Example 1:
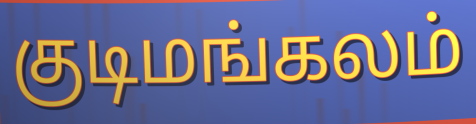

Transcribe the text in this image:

குடிமங்கலம்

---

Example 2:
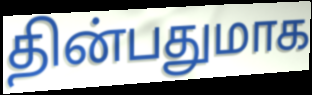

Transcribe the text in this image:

தின்பதுமாக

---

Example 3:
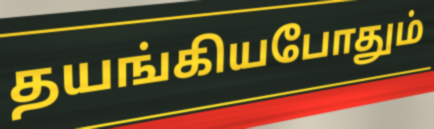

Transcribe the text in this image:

தயங்கியபோதும்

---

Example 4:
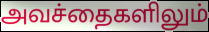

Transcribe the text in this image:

அவச்தைகளிலும்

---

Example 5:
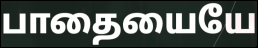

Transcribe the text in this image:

பாதையையே